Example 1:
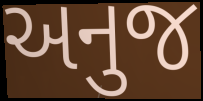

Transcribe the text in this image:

અનુજ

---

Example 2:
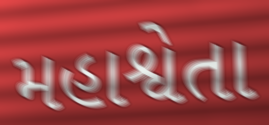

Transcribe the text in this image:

મહાશ્વેતા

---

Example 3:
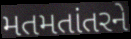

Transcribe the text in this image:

મતમતાંતરને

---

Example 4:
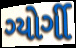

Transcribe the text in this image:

ગ્યોર્ગી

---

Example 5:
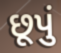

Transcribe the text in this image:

છૂપું